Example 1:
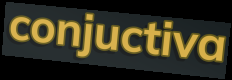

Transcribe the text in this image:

conjuctiva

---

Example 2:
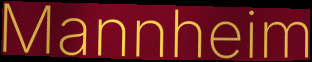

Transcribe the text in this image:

Mannheim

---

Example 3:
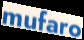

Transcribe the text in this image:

mufaro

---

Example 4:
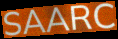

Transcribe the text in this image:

SAARC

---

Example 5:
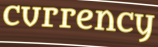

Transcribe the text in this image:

currency